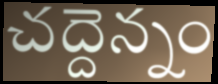
చద్దెన్నం